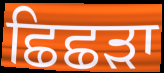
ਛਿਛੜਾ